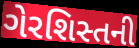
ગેરશિસ્તની